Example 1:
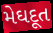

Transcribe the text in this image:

મેઘદૂત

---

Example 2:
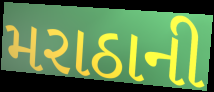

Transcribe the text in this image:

મરાઠાની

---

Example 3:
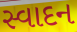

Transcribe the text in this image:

સ્વાદન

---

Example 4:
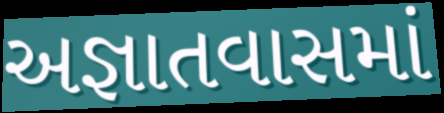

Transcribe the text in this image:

અજ્ઞાતવાસમાં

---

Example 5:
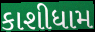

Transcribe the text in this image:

કાશીધામ